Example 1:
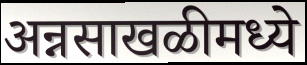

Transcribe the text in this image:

अन्नसाखळीमध्ये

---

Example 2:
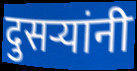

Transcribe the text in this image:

दुसर्‍यांनी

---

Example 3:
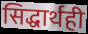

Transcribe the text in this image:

सिद्धार्थही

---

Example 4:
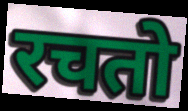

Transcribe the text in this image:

रचतो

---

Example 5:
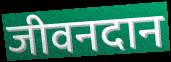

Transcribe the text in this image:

जीवनदान